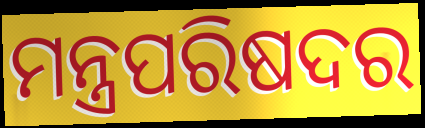
ମନ୍ତ୍ରପରିଷଦର